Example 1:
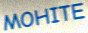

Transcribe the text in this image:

MOHITE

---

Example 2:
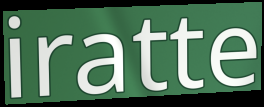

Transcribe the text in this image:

iratte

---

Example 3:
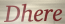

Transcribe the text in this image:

Dhere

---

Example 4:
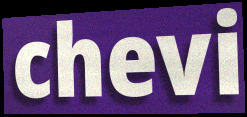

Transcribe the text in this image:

chevi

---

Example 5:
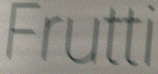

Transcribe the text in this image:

Frutti